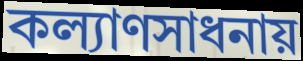
কল্যাণসাধনায়